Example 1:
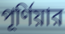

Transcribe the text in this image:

পূর্ণিয়ার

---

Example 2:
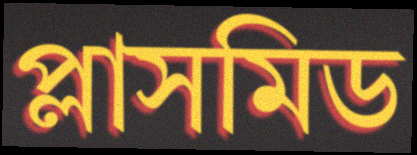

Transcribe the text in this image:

প্লাসমিড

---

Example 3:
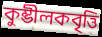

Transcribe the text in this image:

কুম্ভীলকবৃত্তি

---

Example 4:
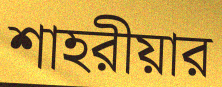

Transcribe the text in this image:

শাহরীয়ার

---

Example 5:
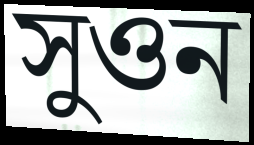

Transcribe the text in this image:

সুওন